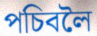
পচিবলৈ